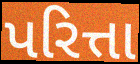
પરિત્તા